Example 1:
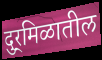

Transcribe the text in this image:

दुर्मिळातील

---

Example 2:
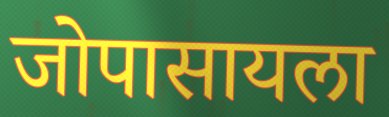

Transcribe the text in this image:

जोपासायला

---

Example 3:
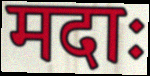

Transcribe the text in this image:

मदाः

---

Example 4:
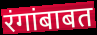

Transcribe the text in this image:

रंगांबाबत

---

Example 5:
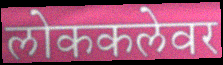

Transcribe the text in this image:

लोककलेवर